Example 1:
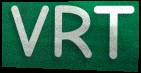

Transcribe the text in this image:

VRT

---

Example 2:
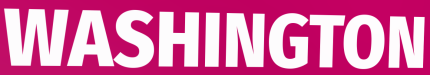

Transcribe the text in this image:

WASHINGTON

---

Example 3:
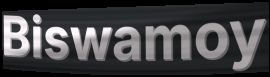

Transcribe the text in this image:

Biswamoy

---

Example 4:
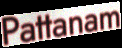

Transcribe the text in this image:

Pattanam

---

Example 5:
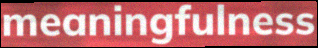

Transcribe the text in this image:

meaningfulness